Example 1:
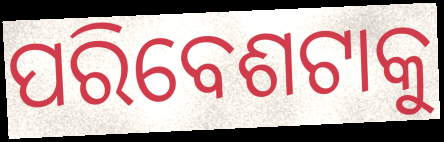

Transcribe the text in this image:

ପରିବେଶଟାକୁ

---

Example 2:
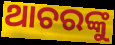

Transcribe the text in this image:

ଥାଚରଙ୍କୁ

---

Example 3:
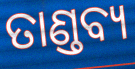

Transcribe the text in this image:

ତାଣ୍ଡବ୍ୟ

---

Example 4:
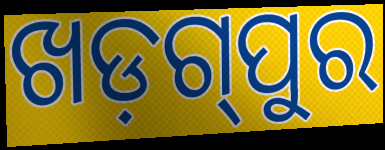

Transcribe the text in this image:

ଖଡ଼ଗ୍‌ପୁର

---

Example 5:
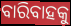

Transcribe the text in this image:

ବାରିବାହକୁ